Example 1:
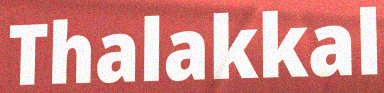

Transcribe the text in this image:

Thalakkal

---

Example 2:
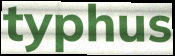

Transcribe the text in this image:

typhus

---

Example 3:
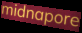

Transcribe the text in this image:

midnapore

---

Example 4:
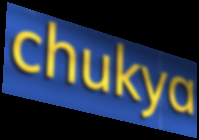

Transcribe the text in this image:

chukya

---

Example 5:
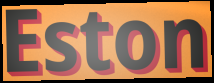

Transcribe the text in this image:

Eston